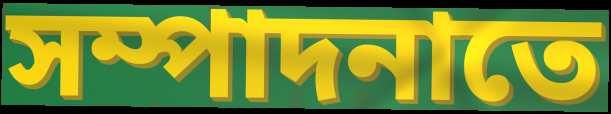
সম্পাদনাতে